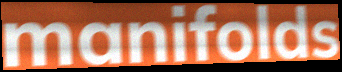
manifolds